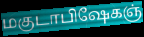
மகுடாபிஷேகஞ்